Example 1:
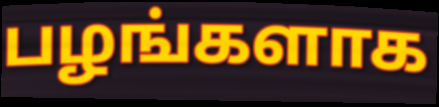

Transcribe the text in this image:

பழங்களாக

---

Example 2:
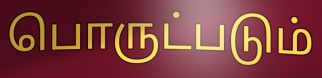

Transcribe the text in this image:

பொருட்படும்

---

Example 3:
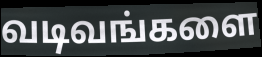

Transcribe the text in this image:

வடிவங்களை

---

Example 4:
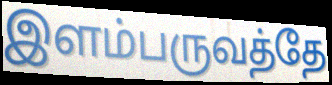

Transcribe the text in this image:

இளம்பருவத்தே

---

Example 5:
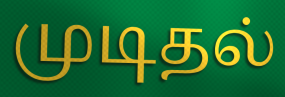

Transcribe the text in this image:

முடிதல்